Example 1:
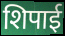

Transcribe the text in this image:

शिपाई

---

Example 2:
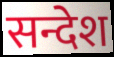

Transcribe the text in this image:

सन्देश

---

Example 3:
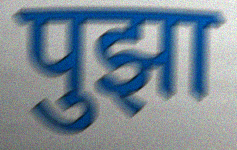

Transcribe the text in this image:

पुझा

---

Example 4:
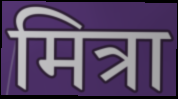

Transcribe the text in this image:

मित्रा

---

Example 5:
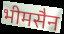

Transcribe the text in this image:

भीमसैन